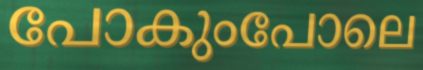
പോകുംപോലെ